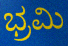
ಭ್ರಮಿ